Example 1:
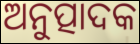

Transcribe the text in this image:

ଅନୁତ୍ପାଦକ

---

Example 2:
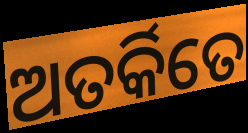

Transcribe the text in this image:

ଅତର୍କିତେ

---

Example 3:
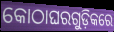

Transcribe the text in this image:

କୋଠାଘରଗୁଡ଼ିକରେ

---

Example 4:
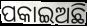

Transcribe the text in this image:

ପକାଇଅଛି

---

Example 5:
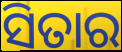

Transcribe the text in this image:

ସିତାର